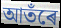
আতঁৰে